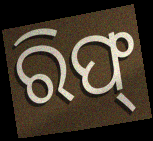
ରିଫ୍